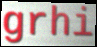
grhi